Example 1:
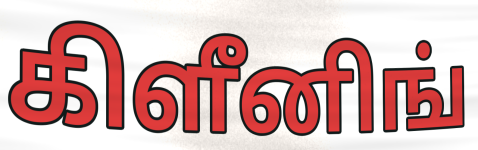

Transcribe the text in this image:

கிளீனிங்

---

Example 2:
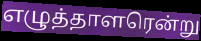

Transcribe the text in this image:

எழுத்தாளரென்று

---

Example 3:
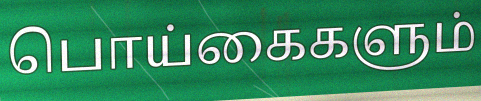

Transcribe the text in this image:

பொய்கைகளும்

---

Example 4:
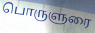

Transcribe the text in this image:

பொருளுரை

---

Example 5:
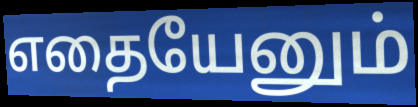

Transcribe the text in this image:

எதையேனும்